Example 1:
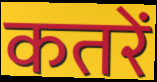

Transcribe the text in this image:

कतरें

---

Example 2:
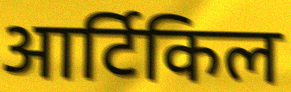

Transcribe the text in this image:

आर्टिकिल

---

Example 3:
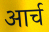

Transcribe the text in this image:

आर्च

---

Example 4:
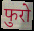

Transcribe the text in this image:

फुरो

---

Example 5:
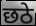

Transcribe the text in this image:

छठे